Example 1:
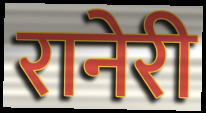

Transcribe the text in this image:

रानेरी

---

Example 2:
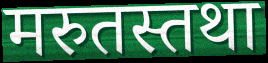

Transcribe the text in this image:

मरुतस्तथा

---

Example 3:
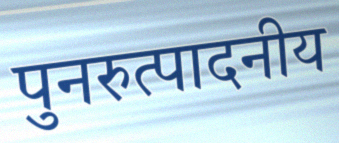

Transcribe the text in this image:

पुनरुत्पादनीय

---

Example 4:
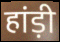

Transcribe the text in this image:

हांड़ी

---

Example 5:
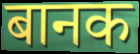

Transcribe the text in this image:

बानक